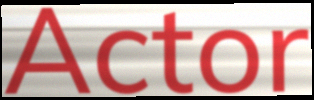
Actor